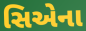
સિએના